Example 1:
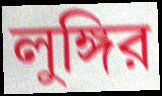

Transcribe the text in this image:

লুঙ্গির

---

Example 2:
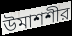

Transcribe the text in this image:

উমাশশীর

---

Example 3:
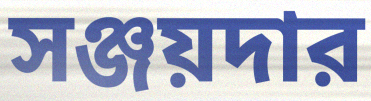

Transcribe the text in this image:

সঞ্জয়দার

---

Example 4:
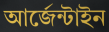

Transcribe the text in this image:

আর্জেন্টাইন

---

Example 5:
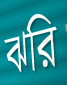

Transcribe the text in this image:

ঝরি